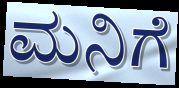
ಮನಿಗೆ